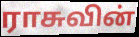
ராசுவின்